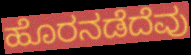
ಹೊರನಡೆದೆವು